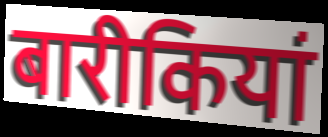
बारीकियां